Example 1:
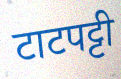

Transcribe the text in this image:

टाटपट्टी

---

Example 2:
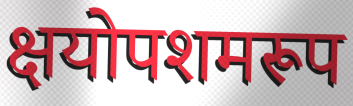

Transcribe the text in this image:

क्षयोपशमरूप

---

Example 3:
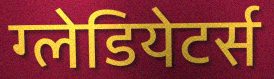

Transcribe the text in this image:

ग्लेडियेटर्स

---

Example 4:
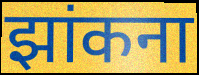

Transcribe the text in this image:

झांकना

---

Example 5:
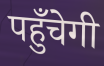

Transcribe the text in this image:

पहुँचेगी